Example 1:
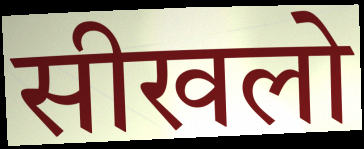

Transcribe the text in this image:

सीखलो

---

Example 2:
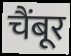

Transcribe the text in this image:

चैंबूर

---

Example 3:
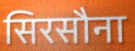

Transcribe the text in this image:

सिरसौना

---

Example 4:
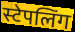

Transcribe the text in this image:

स्टेपलिंग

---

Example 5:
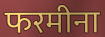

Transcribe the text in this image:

फरमीना